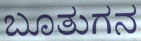
ಬೂತುಗನ